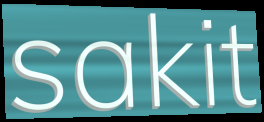
sakit